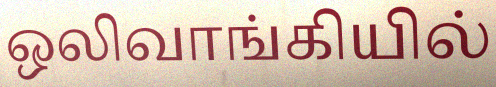
ஒலிவாங்கியில்